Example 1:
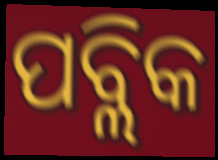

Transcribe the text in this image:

ପବ୍ଲିକ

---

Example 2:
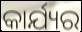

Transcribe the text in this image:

କାର୍ଯ୍ୟର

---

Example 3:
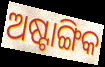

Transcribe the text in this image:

ଅଷ୍ଟାଙ୍ଗିକ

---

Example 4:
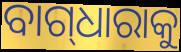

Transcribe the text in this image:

ବାଗ୍‌ଧାରାକୁ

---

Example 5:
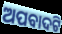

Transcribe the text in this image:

ଅପବାଦଟି